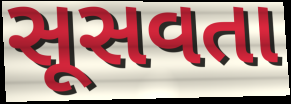
સૂસવતા